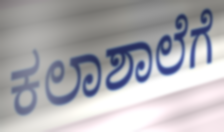
ಕಲಾಶಾಲೆಗೆ